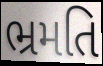
ભ્રમતિ